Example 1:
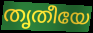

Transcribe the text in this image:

തൃതീയേ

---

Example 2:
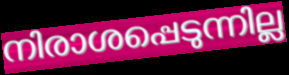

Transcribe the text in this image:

നിരാശപ്പെടുന്നില്ല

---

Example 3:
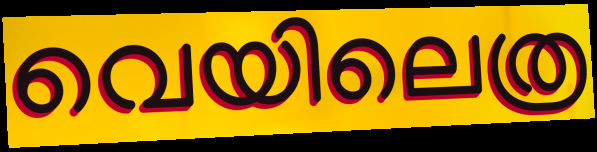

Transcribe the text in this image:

വെയിലെത്ര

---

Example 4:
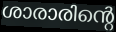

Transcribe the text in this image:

ശാരാരിന്റെ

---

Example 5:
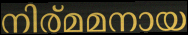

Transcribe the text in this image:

നിര്മമനായ